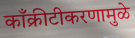
काँक्रीटीकरणामुळे